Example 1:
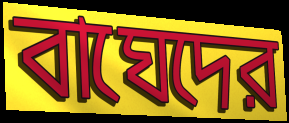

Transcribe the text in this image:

বাঘেদের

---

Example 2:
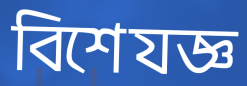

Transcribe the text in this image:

বিশেযজ্ঞ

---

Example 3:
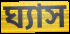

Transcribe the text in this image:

ঘ্যাস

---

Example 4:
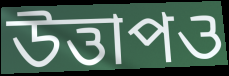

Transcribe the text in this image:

উত্তাপও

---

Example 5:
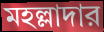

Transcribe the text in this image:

মহল্লাদার